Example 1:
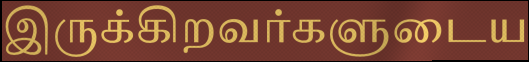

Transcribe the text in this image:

இருக்கிறவர்களுடைய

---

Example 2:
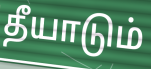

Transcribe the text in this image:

தீயாடும்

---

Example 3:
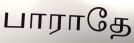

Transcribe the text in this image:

பாராதே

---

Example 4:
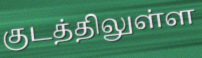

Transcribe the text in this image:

குடத்திலுள்ள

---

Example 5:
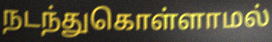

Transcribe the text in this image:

நடந்துகொள்ளாமல்